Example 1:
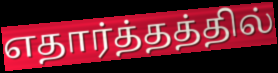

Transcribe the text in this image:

எதார்த்தத்தில்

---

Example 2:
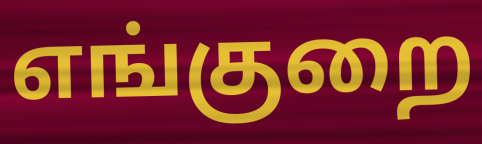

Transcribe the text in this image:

எங்குறை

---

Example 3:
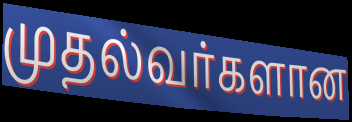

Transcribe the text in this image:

முதல்வர்களான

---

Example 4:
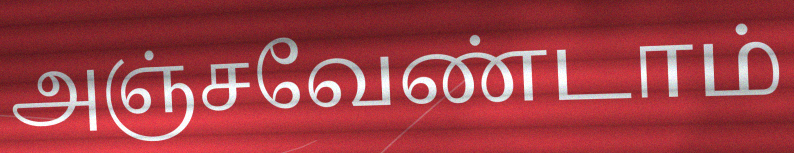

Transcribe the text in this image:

அஞ்சவேண்டாம்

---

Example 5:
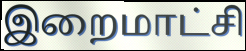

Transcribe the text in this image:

இறைமாட்சி